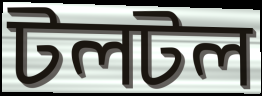
টলটল